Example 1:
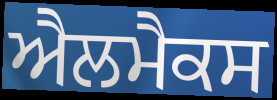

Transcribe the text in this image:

ਐਲਮੈਕਸ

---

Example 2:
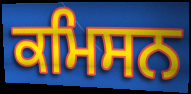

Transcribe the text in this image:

ਕਮਿਸਨ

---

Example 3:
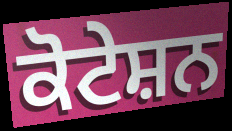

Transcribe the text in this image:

ਕੋਟੇਸ਼ਨ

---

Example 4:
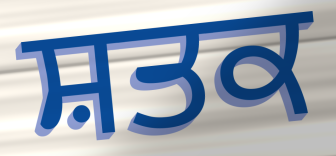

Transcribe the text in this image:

ਸ਼ਤਕ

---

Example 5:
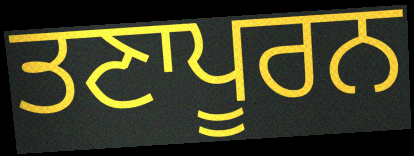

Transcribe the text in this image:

ਤਣਾਪੂਰਨ